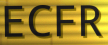
ECFR